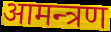
आमन्त्रण